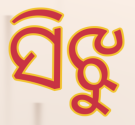
ସିଝୁ